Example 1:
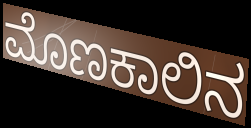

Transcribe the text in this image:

ಮೊಣಕಾಲಿನ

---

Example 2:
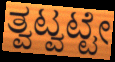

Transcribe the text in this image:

ತ್ವಟ್ವಟ್ಟೇ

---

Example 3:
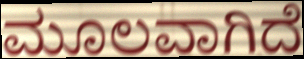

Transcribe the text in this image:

ಮೂಲವಾಗಿದೆ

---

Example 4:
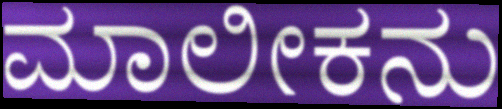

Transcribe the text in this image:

ಮಾಲೀಕನು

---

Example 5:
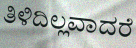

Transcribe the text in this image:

ತಿಳಿದಿಲ್ಲವಾದರೆ